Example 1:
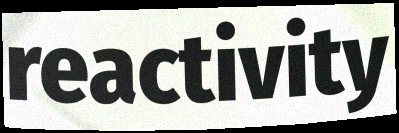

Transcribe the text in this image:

reactivity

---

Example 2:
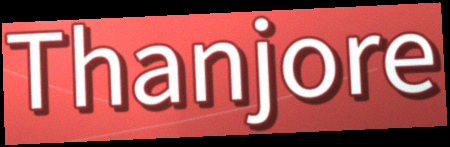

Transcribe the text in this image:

Thanjore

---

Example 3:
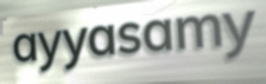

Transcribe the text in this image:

ayyasamy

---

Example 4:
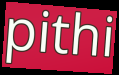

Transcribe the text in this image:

pithi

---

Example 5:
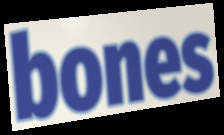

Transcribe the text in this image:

bones